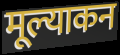
मूल्याकन